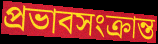
প্রভাবসংক্রান্ত